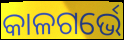
କାଳଗର୍ଭେ